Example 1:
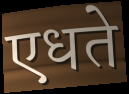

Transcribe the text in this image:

एधते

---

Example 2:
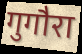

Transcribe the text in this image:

गुगौरा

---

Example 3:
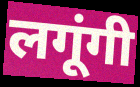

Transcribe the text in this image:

लगूंगी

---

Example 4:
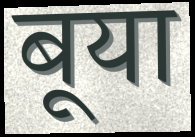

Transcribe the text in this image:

बूया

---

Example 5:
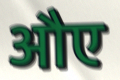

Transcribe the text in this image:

औए